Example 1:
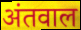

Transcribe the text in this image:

अंतवाल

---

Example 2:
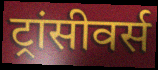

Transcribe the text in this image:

ट्रांसीवर्स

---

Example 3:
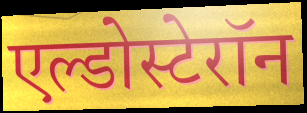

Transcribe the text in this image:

एल्डोस्टेरॉन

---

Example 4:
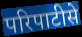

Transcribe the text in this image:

परिपाटीसे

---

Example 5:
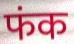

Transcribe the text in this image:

फंक